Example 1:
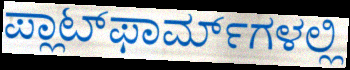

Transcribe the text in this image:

ಪ್ಲಾಟ್‌ಫಾರ್ಮ್‌ಗಳಲ್ಲಿ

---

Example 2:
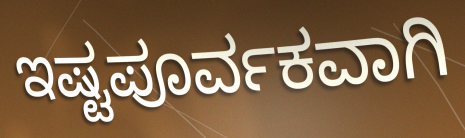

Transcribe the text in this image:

ಇಷ್ಟಪೂರ್ವಕವಾಗಿ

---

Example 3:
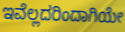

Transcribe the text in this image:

ಇವೆಲ್ಲದರಿಂದಾಗಿಯೇ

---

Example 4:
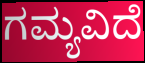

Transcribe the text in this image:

ಗಮ್ಯವಿದೆ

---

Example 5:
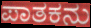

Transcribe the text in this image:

ಪಾತಕನು